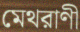
মেথরাণী